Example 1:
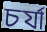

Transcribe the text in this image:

চর্যা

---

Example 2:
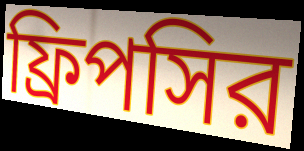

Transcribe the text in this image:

ফ্রিপসির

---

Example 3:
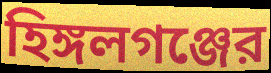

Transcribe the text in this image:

হিঙ্গলগঞ্জের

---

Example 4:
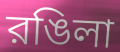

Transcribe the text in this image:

রঙিলা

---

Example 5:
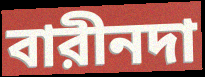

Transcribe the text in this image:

বারীনদা